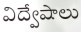
విద్వేషాలు